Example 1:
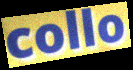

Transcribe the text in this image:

collo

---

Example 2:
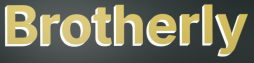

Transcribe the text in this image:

Brotherly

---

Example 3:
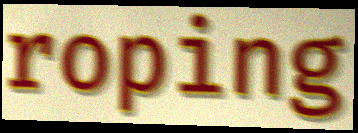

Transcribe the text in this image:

roping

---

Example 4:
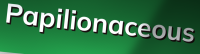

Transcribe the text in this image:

Papilionaceous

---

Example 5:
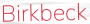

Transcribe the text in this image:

Birkbeck